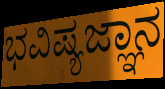
ಭವಿಷ್ಯಜ್ಞಾನ